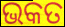
ଭକତ